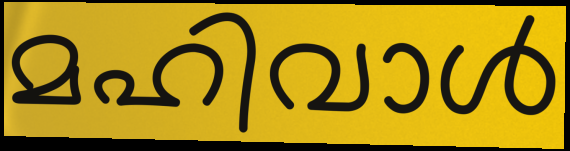
മഹിവാൾ